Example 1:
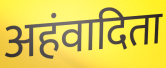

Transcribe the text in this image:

अहंवादिता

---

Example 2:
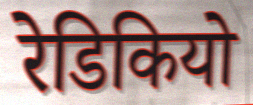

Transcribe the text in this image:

रेडिकियो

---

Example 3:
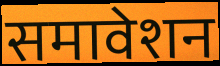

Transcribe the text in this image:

समावेशन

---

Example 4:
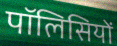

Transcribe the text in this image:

पॉलिसियों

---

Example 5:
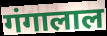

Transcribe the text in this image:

गंगालाल